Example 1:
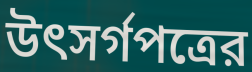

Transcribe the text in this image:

উৎসর্গপত্রের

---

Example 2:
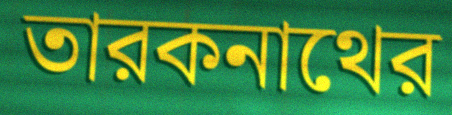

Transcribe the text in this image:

তারকনাথের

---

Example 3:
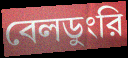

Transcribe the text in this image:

বেলডুংরি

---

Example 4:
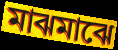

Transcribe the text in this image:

মাঝমাঝে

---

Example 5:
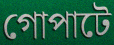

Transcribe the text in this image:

গোপাটে